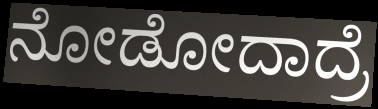
ನೋಡೋದಾದ್ರೆ